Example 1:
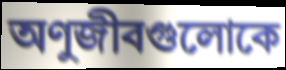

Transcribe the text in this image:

অণুজীবগুলোকে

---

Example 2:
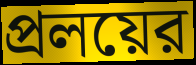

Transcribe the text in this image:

প্রলয়ের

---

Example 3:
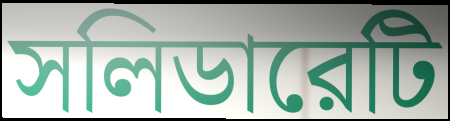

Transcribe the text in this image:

সলিডারেটি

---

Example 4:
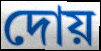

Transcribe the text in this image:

দোয়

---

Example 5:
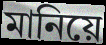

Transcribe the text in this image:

মানিয়ে